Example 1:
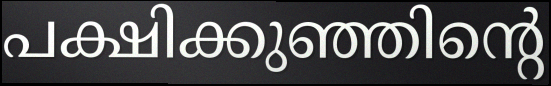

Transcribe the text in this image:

പക്ഷിക്കുഞ്ഞിന്റെ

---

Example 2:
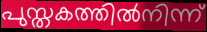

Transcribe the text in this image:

പുസ്തകത്തിൽനിന്ന്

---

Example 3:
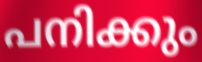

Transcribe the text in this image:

പനിക്കും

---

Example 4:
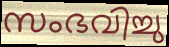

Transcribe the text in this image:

സംഭവിച്ചു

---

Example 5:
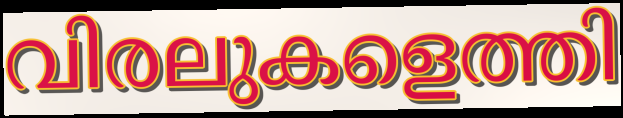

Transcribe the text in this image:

വിരലുകളെത്തി